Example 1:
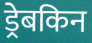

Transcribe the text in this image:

ड्रेबकिन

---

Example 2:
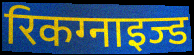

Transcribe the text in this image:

रिकग्नाइज्ड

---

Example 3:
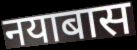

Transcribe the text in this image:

नयाबास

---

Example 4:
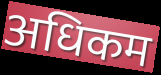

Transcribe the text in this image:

अधिकम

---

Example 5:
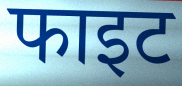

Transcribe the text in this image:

फाइट